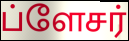
ப்ளேசர்